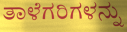
ತಾಳೆಗರಿಗಳನ್ನು